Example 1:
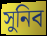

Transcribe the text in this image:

সুনিব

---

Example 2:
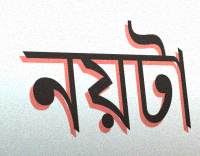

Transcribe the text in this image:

নয়টা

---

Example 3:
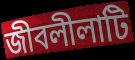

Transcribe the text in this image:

জীবলীলাটি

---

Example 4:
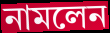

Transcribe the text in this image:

নামলেন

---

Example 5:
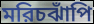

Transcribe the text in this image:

মরিচঝাঁপি